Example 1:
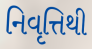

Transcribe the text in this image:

નિવૃત્તિથી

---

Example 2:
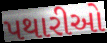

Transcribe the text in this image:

પથારીઓ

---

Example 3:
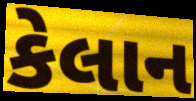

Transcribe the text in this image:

કેલાન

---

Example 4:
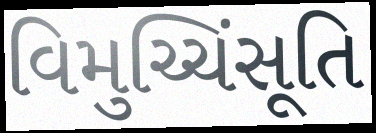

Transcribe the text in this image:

વિમુચ્ચિંસૂતિ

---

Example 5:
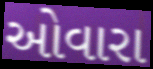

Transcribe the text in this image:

ઓવારા